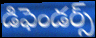
డిఫెండర్స్